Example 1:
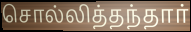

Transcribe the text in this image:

சொல்லித்தந்தார்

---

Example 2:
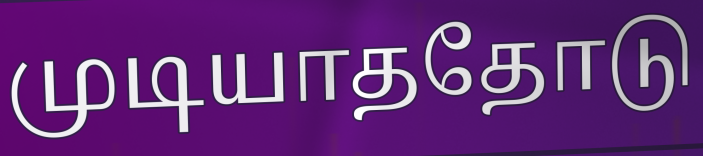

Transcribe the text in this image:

முடியாததோடு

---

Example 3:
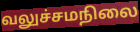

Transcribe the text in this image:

வலுச்சமநிலை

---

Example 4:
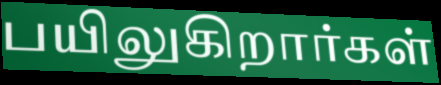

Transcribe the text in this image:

பயிலுகிறார்கள்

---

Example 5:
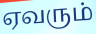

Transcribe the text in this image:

ஏவரும்